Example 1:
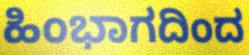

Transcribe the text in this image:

ಹಿಂಭಾಗದಿಂದ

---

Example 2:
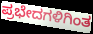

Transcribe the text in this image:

ಪ್ರಭೇದಗಳಿಗಿಂತ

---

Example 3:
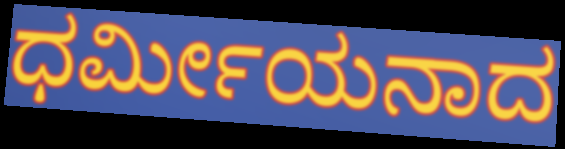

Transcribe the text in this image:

ಧರ್ಮೀಯನಾದ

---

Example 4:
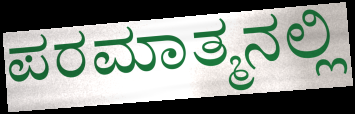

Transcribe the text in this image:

ಪರಮಾತ್ಮನಲ್ಲಿ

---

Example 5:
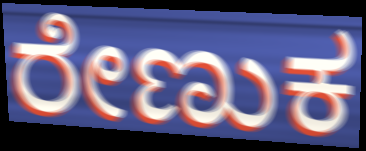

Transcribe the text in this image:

ರೇಣುಕ